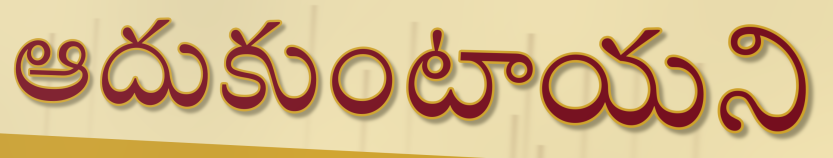
ఆదుకుంటాయని